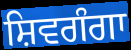
ਸ਼ਿਵਗੰਗਾ